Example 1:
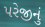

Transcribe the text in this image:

પરેજીનું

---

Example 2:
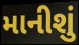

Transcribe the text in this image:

માનીશું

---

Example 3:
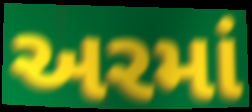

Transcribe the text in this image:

અરમાં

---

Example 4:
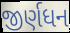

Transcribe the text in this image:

જીર્ણધન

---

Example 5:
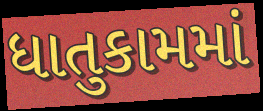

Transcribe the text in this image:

ધાતુકામમાં